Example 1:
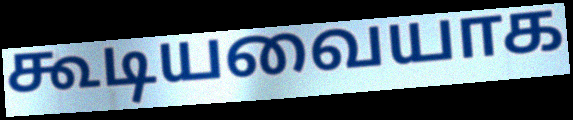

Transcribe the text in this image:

கூடியவையாக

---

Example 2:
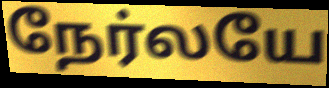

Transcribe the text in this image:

நேர்லயே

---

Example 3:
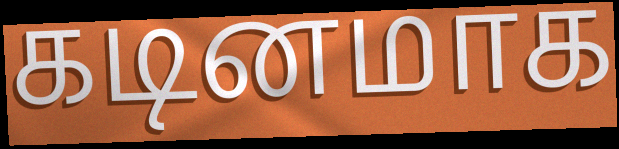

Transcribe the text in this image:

கடினமாக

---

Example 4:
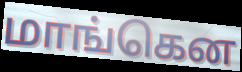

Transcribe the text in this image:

மாங்கென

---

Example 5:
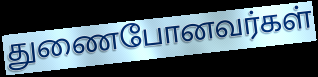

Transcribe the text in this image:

துணைபோனவர்கள்